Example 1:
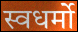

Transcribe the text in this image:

स्वधर्मो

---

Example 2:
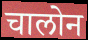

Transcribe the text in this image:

चालोन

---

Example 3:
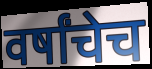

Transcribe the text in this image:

वर्षांचेच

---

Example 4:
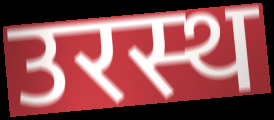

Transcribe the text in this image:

उरस्थ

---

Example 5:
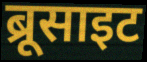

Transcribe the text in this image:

ब्रूसाइट